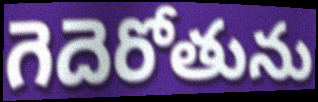
గెదెరోతును